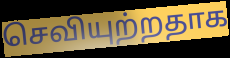
செவியுற்றதாக